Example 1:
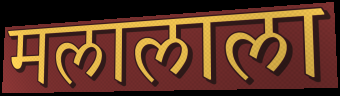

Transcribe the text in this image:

मलालाला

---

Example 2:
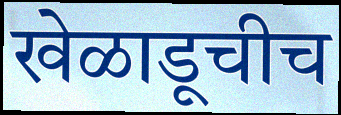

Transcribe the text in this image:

खेळाडूचीच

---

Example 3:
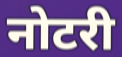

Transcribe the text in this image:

नोटरी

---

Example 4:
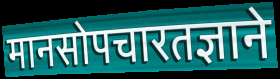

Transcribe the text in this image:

मानसोपचारतज्ञाने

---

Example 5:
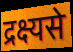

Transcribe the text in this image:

द्रक्ष्यसे